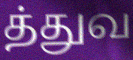
த்துவ